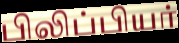
பிலிப்பியர்